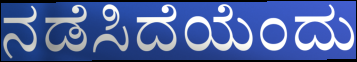
ನಡೆಸಿದೆಯೆಂದು